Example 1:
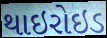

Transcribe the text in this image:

થાઇરોઇડ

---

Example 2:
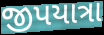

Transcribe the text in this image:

જીપયાત્રા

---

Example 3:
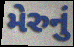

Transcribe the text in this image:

મેરુનું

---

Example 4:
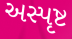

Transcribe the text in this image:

અસ્પૃષ્ટ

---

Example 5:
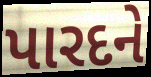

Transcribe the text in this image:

પારદને